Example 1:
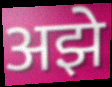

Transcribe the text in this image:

अझे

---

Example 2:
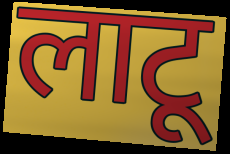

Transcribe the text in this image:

लाटू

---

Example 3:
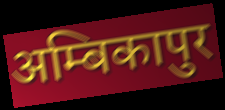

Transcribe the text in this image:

अम्बिकापुर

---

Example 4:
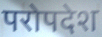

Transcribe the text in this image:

परोपदेश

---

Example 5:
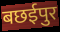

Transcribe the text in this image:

बछईपुर